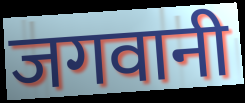
जगवानी